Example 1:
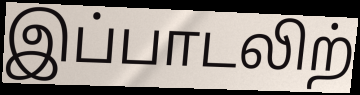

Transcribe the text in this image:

இப்பாடலிற்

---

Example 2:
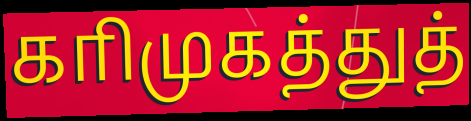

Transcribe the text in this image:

கரிமுகத்துத்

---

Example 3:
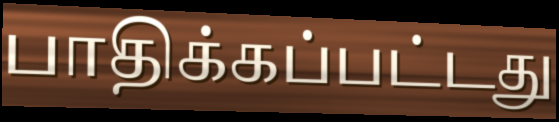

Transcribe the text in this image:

பாதிக்கப்பட்டது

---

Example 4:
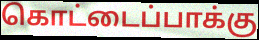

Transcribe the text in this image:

கொட்டைப்பாக்கு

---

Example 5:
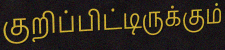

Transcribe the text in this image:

குறிப்பிட்டிருக்கும்